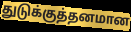
துடுக்குத்தனமான